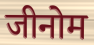
जीनोम